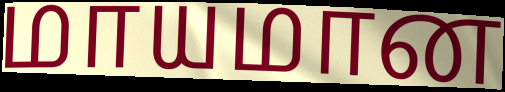
மாயமான